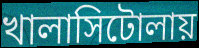
খালাসিটোলায়